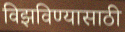
विझविण्यासाठी